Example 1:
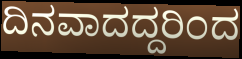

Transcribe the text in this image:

ದಿನವಾದದ್ದರಿಂದ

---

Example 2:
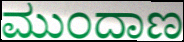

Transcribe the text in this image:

ಮುಂದಾಣ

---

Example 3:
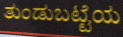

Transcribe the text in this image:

ತುಂಡುಬಟ್ಟೆಯ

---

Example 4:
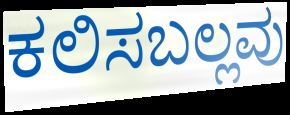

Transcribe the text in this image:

ಕಲಿಸಬಲ್ಲವು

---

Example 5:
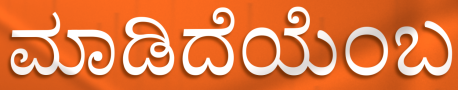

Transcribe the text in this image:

ಮಾಡಿದೆಯೆಂಬ